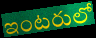
ఇంటరులో